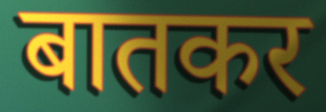
बातकर